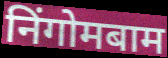
निंगोमबाम